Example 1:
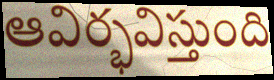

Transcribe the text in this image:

ఆవిర్భవిస్తుంది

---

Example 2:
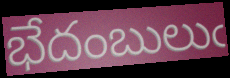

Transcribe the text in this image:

భేదంబులుఁ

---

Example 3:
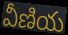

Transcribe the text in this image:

వీణియ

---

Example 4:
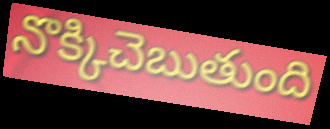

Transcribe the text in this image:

నొక్కిచెబుతుంది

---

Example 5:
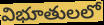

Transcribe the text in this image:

విభూతులలో